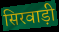
सिरवाड़ी